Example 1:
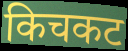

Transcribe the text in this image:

किचकट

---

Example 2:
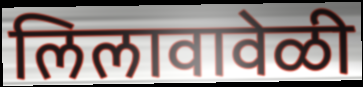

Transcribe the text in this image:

लिलावावेळी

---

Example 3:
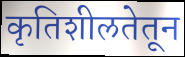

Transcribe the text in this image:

कृतिशीलतेतून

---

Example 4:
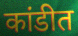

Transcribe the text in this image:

कांडीत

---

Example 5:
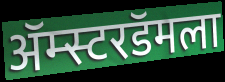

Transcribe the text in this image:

ॲम्स्टरडॅमला